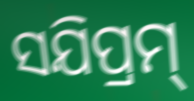
ସଯିପ୍ରମ୍